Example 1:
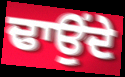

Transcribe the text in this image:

ਢਾਉਂਦੇ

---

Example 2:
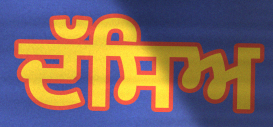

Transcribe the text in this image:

ਦੱਸਿਅ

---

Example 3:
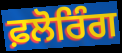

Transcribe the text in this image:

ਫ਼ਲੋਰਿੰਗ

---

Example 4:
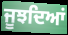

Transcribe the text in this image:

ਜੂਝਦਿਆਂ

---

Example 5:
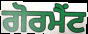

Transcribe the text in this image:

ਗੋਰਮੈਂਟ